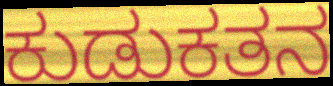
ಕುಡುಕತನ